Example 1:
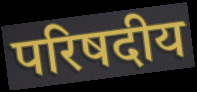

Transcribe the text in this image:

परिषदीय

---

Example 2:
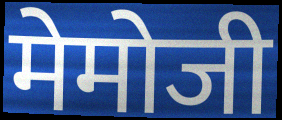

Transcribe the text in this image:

मेमोजी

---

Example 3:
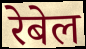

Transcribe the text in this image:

रेबेल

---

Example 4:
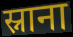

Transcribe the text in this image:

स्नाना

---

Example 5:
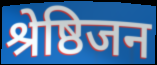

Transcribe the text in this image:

श्रेष्ठिजन